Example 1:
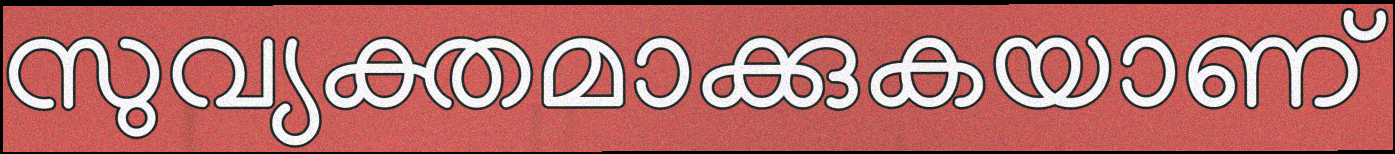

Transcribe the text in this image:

സുവ്യക്തമാക്കുകയാണ്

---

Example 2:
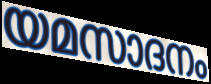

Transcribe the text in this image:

യമസാദനം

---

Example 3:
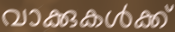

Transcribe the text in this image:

വാക്കുകൾക്ക്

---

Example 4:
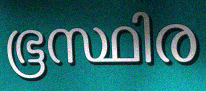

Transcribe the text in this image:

ഭൂസ്ഥിര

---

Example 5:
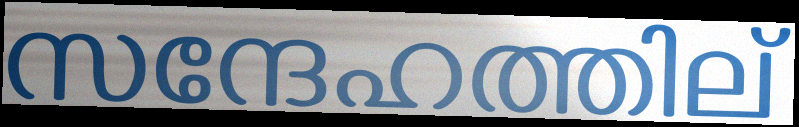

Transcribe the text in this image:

സന്ദേഹത്തില്